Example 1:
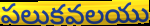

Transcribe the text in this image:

పలుకవలయు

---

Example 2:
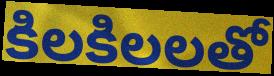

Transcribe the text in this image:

కిలకిలలతో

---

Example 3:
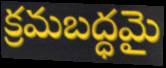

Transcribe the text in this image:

క్రమబద్ధమై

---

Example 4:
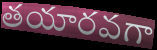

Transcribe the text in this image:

తయారవగా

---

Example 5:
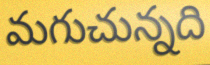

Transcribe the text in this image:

మగుచున్నది